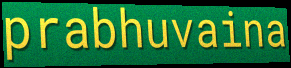
prabhuvaina